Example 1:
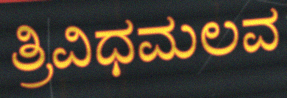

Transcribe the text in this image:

ತ್ರಿವಿಧಮಲವ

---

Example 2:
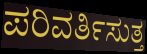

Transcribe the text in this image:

ಪರಿವರ್ತಿಸುತ್ತ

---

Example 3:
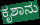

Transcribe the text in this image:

ಕೃಶಾನು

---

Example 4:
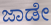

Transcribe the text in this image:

ಜಾಡೇ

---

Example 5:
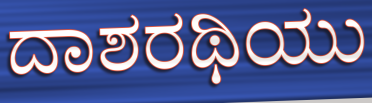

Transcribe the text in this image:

ದಾಶರಥಿಯು